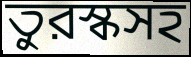
তুরস্কসহ